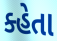
ક્હેતા